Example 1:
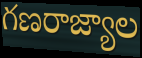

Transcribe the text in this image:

గణరాజ్యాల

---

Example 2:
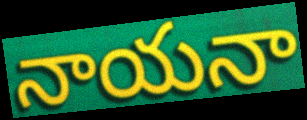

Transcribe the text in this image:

నాయనా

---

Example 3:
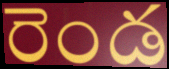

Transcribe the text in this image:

రెండ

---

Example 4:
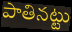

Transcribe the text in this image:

పాతినట్టు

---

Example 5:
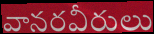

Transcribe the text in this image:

వానరవీరులు